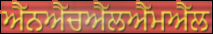
ਐੱਨਐੱਚਐੱਲਐੱਮਐੱਲ